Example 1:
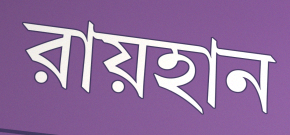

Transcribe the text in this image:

রায়হান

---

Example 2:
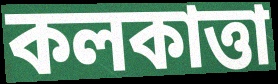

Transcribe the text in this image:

কলকাত্তা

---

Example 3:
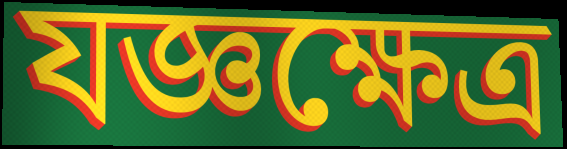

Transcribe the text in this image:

যজ্ঞক্ষেত্র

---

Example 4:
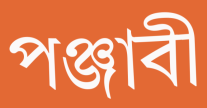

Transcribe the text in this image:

পঞ্জাবী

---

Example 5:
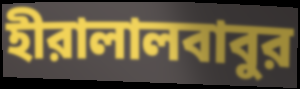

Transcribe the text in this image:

হীরালালবাবুর